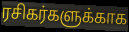
ரசிகர்களுக்காக